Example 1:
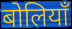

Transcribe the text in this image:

बोलियाँ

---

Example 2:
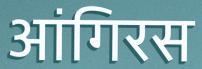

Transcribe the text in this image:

आंगिरस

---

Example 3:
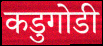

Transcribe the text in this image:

कडुगोडी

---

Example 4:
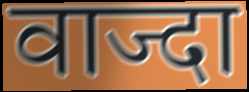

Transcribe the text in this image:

वाज्दा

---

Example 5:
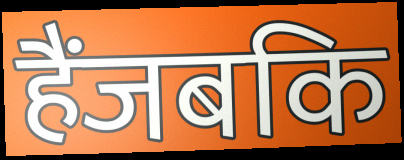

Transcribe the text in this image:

हैंजबकि